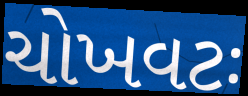
ચોખવટઃ